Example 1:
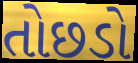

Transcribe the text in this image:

તોછડો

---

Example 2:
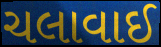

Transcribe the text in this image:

ચલાવાઈ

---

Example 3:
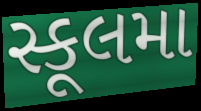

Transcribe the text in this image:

સ્કૂલમા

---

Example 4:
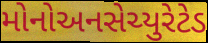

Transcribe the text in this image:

મોનોઅનસેચ્યુરેટેડ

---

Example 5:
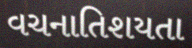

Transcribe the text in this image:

વચનાતિશયતા